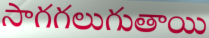
సాగగలుగుతాయి